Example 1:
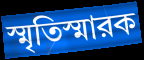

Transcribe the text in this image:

স্মৃতিস্মারক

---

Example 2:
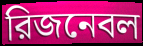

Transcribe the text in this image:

রিজনেবল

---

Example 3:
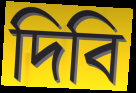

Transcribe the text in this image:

দিবি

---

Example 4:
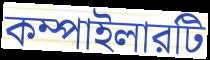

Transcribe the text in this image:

কম্পাইলারটি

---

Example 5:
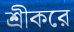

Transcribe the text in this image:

শ্রীকরে